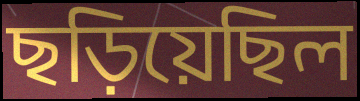
ছড়িয়েছিল